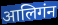
आलिगंन